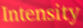
Intensity